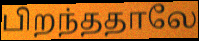
பிறந்ததாலே